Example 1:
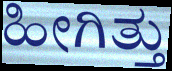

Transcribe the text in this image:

ಹೀಗಿತ್ತು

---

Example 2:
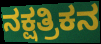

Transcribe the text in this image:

ನಕ್ಷತ್ರಿಕನ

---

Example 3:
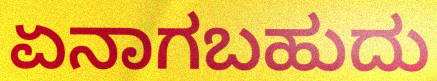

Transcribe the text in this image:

ಏನಾಗಬಹುದು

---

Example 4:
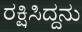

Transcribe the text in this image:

ರಕ್ಷಿಸಿದ್ದನು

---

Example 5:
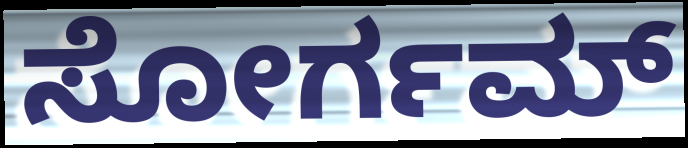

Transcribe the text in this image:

ಸೋರ್ಗಮ್